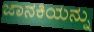
ಜಾನಕಿಯನ್ನು